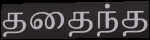
ததைந்த